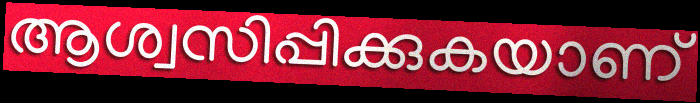
ആശ്വസിപ്പിക്കുകയാണ്